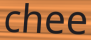
chee